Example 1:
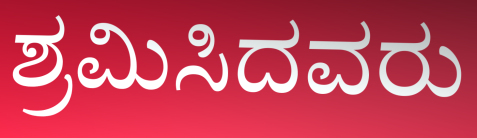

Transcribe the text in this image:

ಶ್ರಮಿಸಿದವರು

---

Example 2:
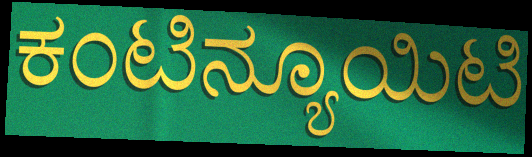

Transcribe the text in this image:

ಕಂಟಿನ್ಯೂಯಿಟಿ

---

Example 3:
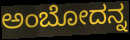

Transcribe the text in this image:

ಅಂಬೋದನ್ನ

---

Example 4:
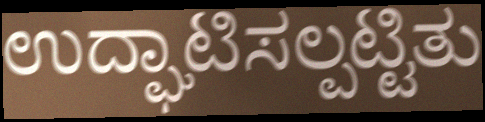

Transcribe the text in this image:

ಉದ್ಘಾಟಿಸಲ್ಪಟ್ಟಿತು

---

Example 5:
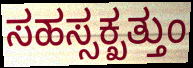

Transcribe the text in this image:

ಸಹಸ್ಸಕ್ಖತ್ತುಂ